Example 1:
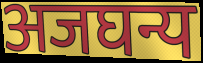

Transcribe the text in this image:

अजघन्य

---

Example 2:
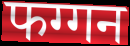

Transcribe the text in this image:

फग्गन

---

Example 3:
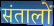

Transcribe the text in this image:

संतालों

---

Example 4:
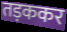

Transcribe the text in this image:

तड़ककर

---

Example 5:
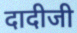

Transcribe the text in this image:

दादीजी